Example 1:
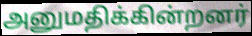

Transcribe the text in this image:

அனுமதிக்கின்றனர்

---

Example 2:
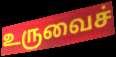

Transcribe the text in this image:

உருவைச்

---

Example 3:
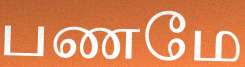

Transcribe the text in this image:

பணமே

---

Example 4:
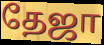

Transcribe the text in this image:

தேஜா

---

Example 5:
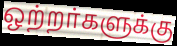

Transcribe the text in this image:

ஒற்றர்களுக்கு